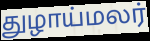
துழாய்மலர்